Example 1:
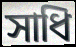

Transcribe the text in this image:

সাধি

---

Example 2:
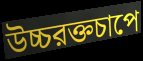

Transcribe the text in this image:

উচ্চরক্তচাপে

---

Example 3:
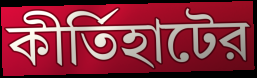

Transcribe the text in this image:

কীর্তিহাটের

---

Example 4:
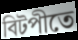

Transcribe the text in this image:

বিটপীতে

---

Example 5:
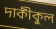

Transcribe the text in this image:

দাকীকুল